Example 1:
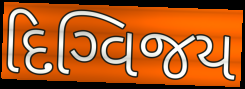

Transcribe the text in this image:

દિગ્વિજય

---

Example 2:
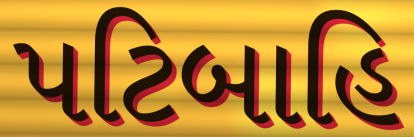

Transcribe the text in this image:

પટિબાહિ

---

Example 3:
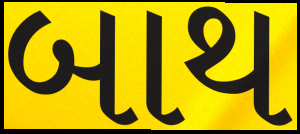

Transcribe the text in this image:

બાથ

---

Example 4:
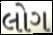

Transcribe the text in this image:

લોગ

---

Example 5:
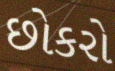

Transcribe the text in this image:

છોકરો